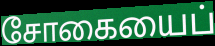
சோகையைப்